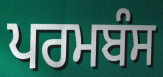
ਪਰਮਬੰਸ